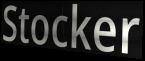
Stocker